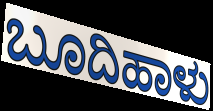
ಬೂದಿಹಾಳು